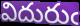
విదురుఁ